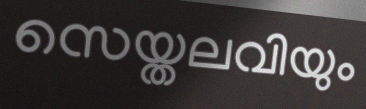
സെയ്തലവിയും